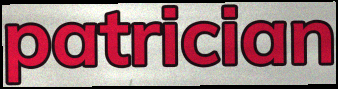
patrician